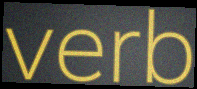
verb